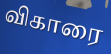
விகாரை